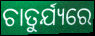
ଚାତୁର୍ଯ୍ୟରେ